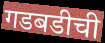
गडबडीची